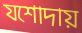
যশোদায়